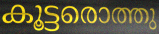
കൂട്ടരൊത്തു